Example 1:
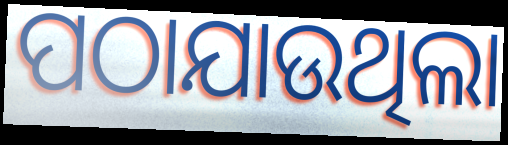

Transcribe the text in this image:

ପଠାଯାଉଥିଲା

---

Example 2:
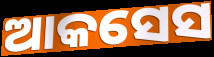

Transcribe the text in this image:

ଆକସେସ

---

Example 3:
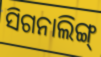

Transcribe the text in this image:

ସିଗନାଲିଙ୍ଗ୍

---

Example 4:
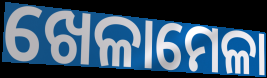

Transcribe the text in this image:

ଖେଳାମେଳା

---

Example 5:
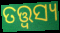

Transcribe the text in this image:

ତତ୍ତ୍ୱସ୍ୟ